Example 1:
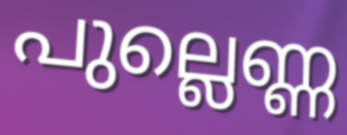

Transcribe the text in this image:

പുല്ലെണ്ണ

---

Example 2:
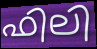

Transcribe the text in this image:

ഫിലി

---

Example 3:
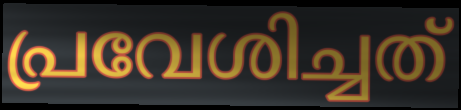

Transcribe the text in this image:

പ്രവേശിച്ചത്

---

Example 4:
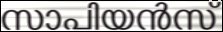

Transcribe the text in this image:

സാപിയൻസ്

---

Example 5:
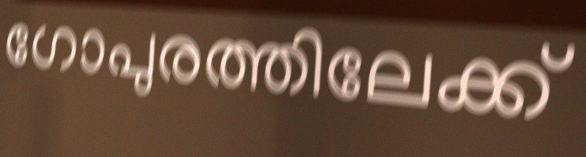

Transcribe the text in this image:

ഗോപുരത്തിലേക്ക്